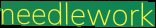
needlework